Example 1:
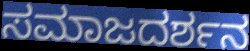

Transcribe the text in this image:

ಸಮಾಜದರ್ಶನ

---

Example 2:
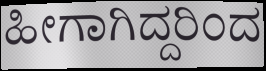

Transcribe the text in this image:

ಹೀಗಾಗಿದ್ದರಿಂದ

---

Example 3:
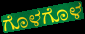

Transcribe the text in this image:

ಗೊಳಗೊಳ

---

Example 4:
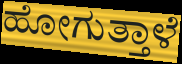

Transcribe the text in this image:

ಹೋಗುತ್ತಾಳೆ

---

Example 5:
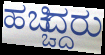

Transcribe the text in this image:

ಹಚ್ಚಿದ್ದರು